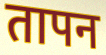
तापन